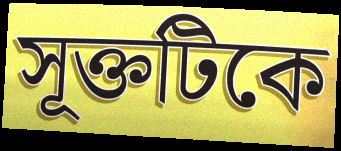
সূক্তটিকে